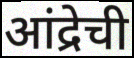
आंद्रेची